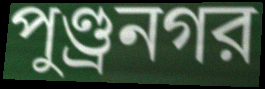
পুণ্ড্রনগর